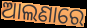
ଆଲଣାରେ